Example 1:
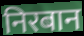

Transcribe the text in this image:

निरबान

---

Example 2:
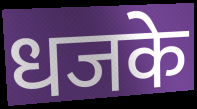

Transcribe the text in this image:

धजके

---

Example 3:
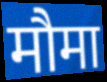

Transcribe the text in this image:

मौमा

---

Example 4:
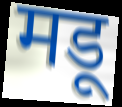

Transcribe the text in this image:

मडू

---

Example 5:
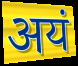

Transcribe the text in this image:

अयं